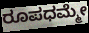
ರೂಪಧಮ್ಮೇ